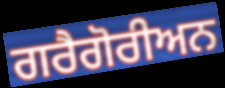
ਗਰੈਗੋਰੀਅਨ